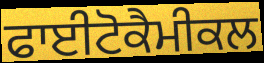
ਫਾਈਟੋਕੈਮੀਕਲ